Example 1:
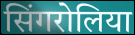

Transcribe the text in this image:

सिंगरोलिया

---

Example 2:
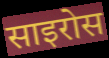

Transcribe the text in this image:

साइरोस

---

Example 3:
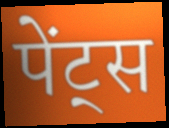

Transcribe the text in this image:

पेंट्स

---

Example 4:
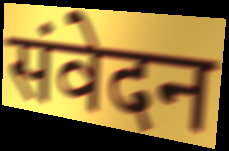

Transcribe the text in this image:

संवेदन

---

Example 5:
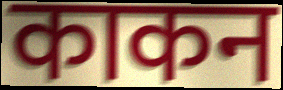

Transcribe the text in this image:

काकन